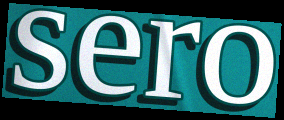
sero